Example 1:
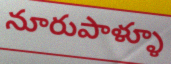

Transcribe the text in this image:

నూరుపాళ్ళూ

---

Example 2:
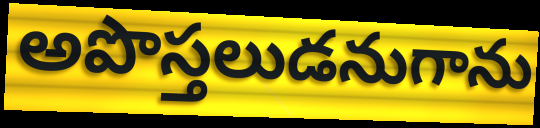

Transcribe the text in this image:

అపొస్తలుడనుగాను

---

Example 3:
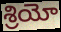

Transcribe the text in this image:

శ్రియో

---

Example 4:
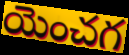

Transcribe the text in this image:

యెంచగ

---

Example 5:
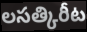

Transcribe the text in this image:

లసత్కిరీట